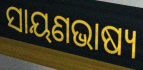
ସାୟଣଭାଷ୍ୟ